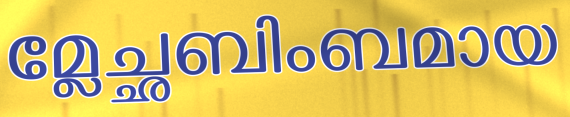
മ്ലേച്ഛബിംബമായ